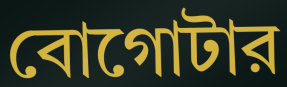
বোগোটার